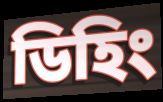
ডিহিং